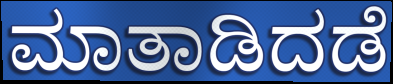
ಮಾತಾಡಿದಡೆ